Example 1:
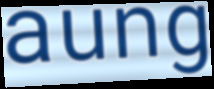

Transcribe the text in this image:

aung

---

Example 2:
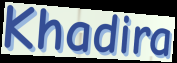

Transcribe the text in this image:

Khadira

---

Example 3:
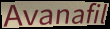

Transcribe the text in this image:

Avanafil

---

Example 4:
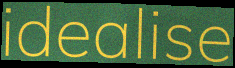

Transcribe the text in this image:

idealise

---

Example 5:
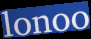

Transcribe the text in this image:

lonoo